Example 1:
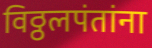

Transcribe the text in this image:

विठ्ठलपंतांना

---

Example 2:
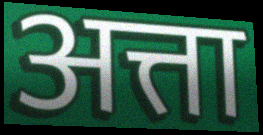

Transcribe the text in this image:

अत्ता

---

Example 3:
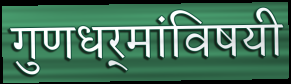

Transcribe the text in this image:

गुणधर्मांविषयी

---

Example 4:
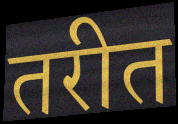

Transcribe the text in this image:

तरीत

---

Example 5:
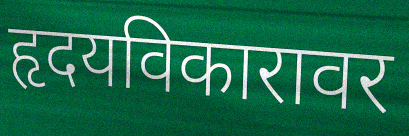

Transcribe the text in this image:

हृदयविकारावर